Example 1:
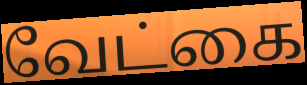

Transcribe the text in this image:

வேட்கை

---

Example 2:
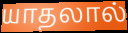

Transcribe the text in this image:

யாதலால்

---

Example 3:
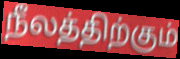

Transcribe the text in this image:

நீலத்திற்கும்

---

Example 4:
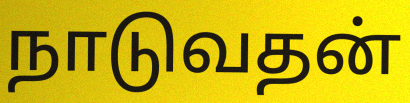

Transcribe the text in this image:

நாடுவதன்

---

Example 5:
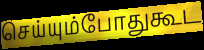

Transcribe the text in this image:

செய்யும்போதுகூட